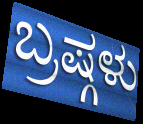
ಬ್ರಷ್ಗಳು